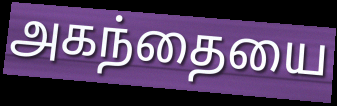
அகந்தையை